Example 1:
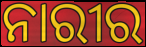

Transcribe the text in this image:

ନାରୀର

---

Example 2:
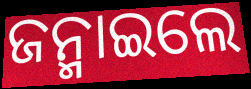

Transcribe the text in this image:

ଜନ୍ମାଇଲେ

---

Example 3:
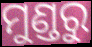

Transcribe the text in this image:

ମୁଣ୍ଡରୁ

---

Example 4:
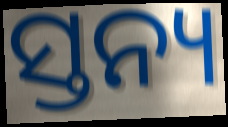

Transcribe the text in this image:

ସ୍ତନ୍ୟ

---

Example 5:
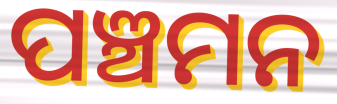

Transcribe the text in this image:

ପଞ୍ଚମନ